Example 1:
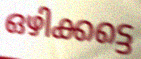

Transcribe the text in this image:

ഒഴിക്കട്ടെ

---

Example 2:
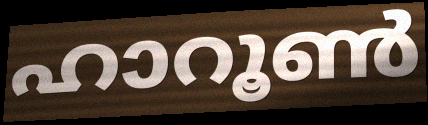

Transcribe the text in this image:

ഹാറൂൺ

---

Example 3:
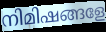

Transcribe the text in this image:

നിമിഷങ്ങളേ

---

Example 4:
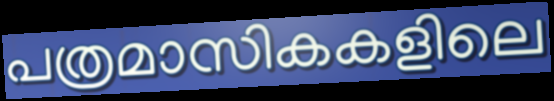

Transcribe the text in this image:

പത്രമാസികകളിലെ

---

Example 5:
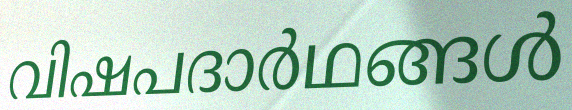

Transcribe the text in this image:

വിഷപദാർഥങ്ങൾ